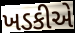
ખડકીએ